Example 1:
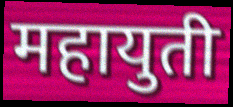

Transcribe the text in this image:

महायुती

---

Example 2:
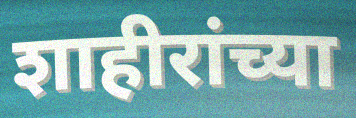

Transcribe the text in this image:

शाहीरांच्या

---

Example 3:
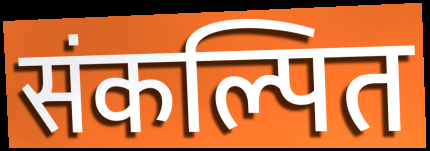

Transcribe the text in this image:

संकल्पित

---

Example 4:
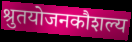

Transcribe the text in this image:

श्रुतयोजनकौशल्य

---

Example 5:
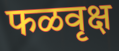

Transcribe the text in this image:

फळवृक्ष